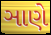
ઞાણે